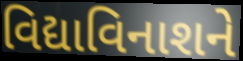
વિદ્યાવિનાશને